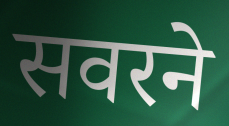
सवरने